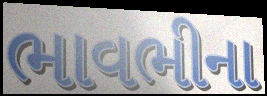
ભાવભીના